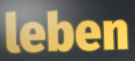
leben